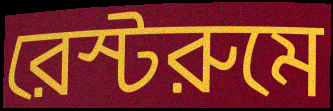
রেস্টরুমে